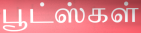
பூட்ஸ்கள்